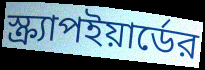
স্ক্র্যাপইয়ার্ডের